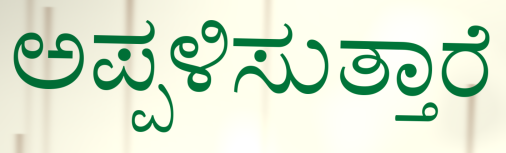
ಅಪ್ಪಳಿಸುತ್ತಾರೆ